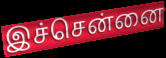
இச்சென்னை